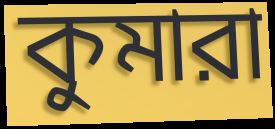
কুমারা